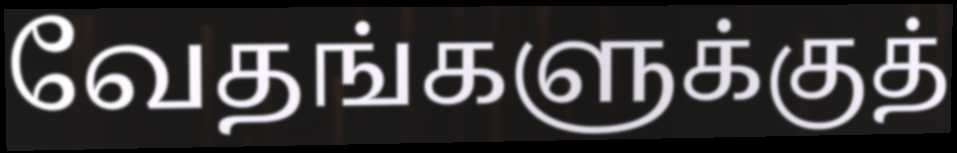
வேதங்களுக்குத்